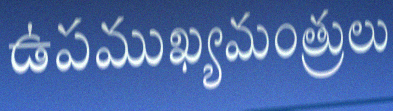
ఉపముఖ్యమంత్రులు